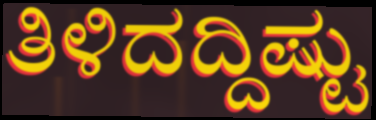
ತಿಳಿದದ್ದಿಷ್ಟು